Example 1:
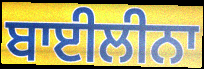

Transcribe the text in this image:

ਬਾਈਲੀਨਾ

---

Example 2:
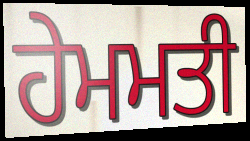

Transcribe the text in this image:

ਹੇਮਮਤੀ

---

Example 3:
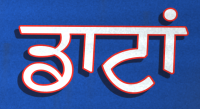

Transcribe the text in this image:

ਡਾਟਾਂ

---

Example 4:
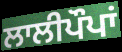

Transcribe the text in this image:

ਲਾਲੀਪੌਪਾਂ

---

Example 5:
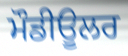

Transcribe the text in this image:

ਮੌਡੀਊਲਰ